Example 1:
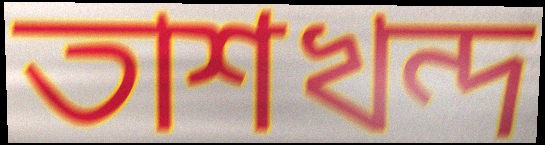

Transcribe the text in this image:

তাশখন্দ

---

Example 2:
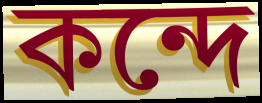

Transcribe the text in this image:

কন্দে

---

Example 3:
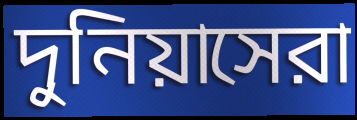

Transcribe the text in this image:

দুনিয়াসেরা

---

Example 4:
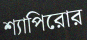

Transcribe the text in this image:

শ্যাপিরোর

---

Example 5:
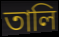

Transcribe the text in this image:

তালি